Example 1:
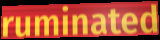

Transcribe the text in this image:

ruminated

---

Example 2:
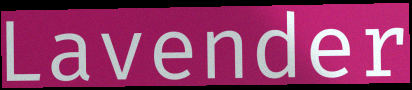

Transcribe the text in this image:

Lavender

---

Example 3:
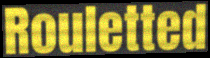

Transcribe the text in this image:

Rouletted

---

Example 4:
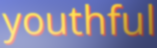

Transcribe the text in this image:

youthful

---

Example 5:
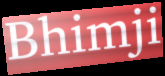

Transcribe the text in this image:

Bhimji